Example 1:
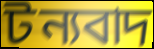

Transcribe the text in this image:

টন্যবাদ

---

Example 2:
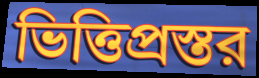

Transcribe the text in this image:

ভিত্তিপ্রস্তর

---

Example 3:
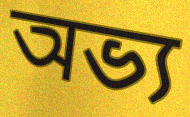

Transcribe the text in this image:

অভ্য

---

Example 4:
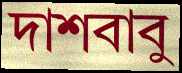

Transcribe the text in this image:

দাশবাবু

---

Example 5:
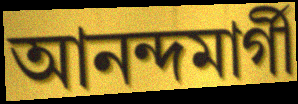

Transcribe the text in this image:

আনন্দমার্গী